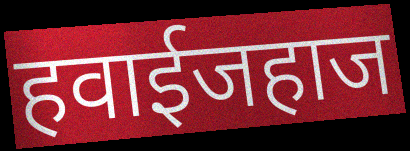
हवाईजहाज